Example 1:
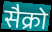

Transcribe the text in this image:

सैक्रो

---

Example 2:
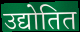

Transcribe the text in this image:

उद्योतित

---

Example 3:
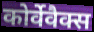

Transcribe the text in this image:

कोर्वेवैक्स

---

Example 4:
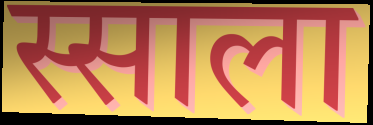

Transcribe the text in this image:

स्साला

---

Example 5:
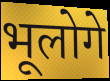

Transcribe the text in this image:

भूलोगे